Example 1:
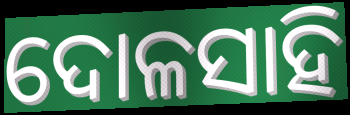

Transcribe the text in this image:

ଦୋଳସାହି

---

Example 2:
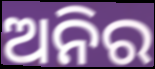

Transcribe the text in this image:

ଅନିର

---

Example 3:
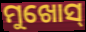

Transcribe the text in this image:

ମୁଖୋସ୍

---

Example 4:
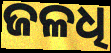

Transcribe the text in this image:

ଜଳଧି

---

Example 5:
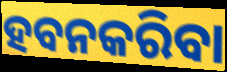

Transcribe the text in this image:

ହବନକରିବା